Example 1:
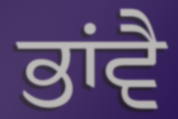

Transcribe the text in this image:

ਭਾਂਵੈ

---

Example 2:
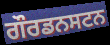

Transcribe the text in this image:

ਗੌਰਡਨਸਟਨ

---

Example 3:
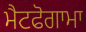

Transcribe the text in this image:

ਮੈਟਫੋਗਾਮਾ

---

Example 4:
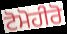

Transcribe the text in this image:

ਟੋਮੋਹੀਰੋ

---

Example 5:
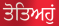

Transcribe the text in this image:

ਤੋਤਿਅਹੁਂ